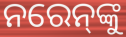
ନରେନ୍‌ଙ୍କୁ